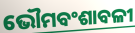
ଭୌମବଂଶାବଳୀ